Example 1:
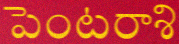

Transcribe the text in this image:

పెంటరాశి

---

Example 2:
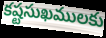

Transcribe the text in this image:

కష్టసుఖములకు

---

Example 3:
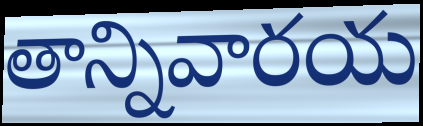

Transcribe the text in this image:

తాన్నివారయ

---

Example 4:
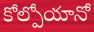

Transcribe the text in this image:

కోల్పోయానో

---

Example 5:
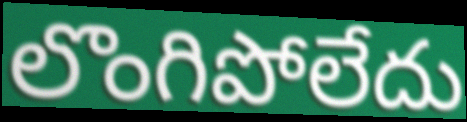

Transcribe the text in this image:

లొంగిపోలేదు